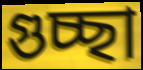
গুচ্ছা